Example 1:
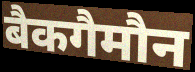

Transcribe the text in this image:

बैकगैमौन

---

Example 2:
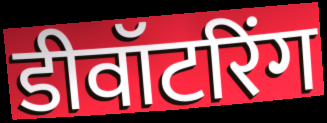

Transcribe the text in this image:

डीवॉटरिंग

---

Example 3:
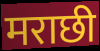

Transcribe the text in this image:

मराछी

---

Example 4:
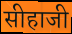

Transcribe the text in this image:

सीहाजी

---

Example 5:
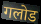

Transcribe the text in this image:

गलोड